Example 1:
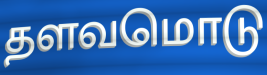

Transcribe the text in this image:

தளவமொடு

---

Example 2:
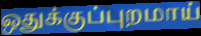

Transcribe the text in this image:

ஒதுக்குப்புறமாய்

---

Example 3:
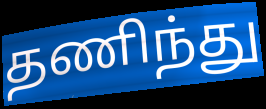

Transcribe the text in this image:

தணிந்து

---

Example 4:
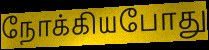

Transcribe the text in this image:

நோக்கியபோது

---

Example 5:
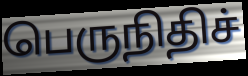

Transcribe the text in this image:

பெருநிதிச்